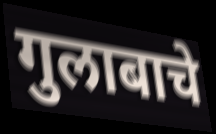
गुलाबाचे